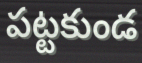
పట్టకుండ